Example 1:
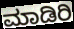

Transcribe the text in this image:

ಮಾಡಿರಿ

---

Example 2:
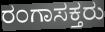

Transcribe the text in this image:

ರಂಗಾಸಕ್ತರು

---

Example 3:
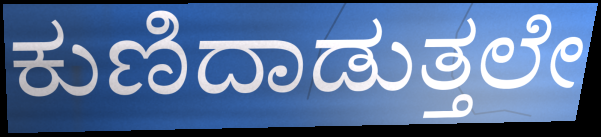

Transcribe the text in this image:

ಕುಣಿದಾಡುತ್ತಲೇ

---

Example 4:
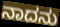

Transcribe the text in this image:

ನಾದನು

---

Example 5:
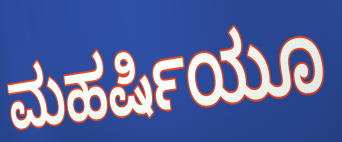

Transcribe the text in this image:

ಮಹರ್ಷಿಯೂ